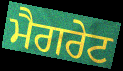
ਮੈਗਰੇਟ